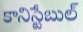
కానిస్టేబుల్